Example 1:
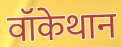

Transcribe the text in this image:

वॉकेथान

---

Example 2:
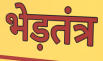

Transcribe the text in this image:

भेड़तंत्र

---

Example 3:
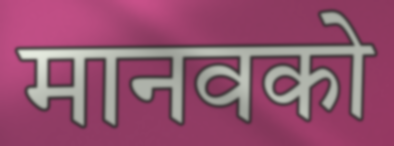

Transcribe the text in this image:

मानवको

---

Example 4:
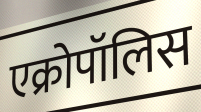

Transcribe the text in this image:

एक्रोपॉलिस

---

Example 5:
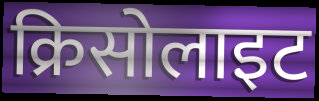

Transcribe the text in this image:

क्रिसोलाइट